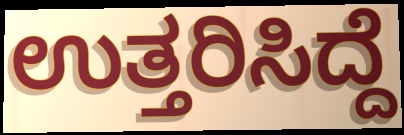
ಉತ್ತರಿಸಿದ್ದೆ